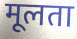
मूलता